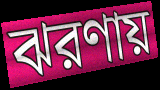
ঝরণায়